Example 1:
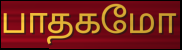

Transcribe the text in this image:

பாதகமோ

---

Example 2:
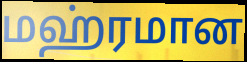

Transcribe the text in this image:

மஹ்ரமான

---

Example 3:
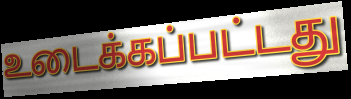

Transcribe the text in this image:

உடைக்கப்பட்டது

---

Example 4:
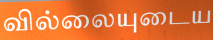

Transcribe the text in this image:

வில்லையுடைய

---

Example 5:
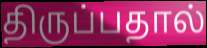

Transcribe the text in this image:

திருப்பதால்